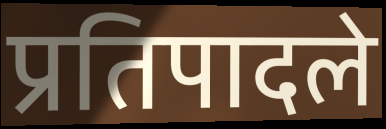
प्रतिपादले